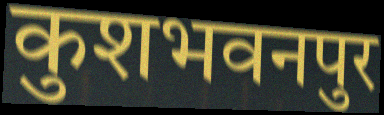
कुशभवनपुर